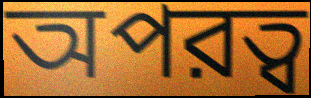
অপরত্ব